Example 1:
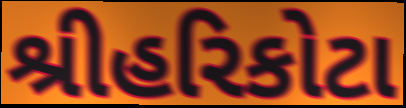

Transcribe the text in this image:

શ્રીહરિકોટા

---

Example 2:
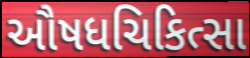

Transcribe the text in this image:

ઔષધચિકિત્સા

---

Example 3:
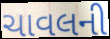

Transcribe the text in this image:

ચાવલની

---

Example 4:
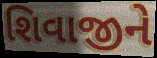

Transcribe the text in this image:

શિવાજીને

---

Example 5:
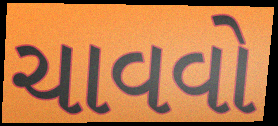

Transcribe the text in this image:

ચાવવો